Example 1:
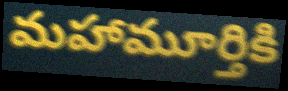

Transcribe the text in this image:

మహామూర్తికి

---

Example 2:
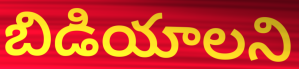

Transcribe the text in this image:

బిడియాలని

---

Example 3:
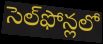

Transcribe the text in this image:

సెల్‌ఫోన్లలో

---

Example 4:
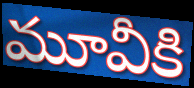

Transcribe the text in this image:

మూవీకి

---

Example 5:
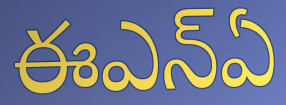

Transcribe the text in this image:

ఈఎన్ఏ